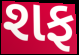
શફ